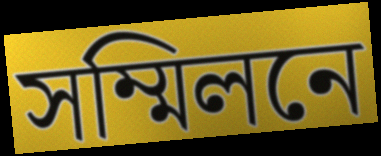
সম্মিলনে